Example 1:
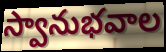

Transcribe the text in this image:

స్వానుభవాల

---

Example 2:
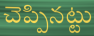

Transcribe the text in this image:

చెప్పినట్టు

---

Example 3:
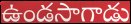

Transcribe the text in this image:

ఉండసాగాడు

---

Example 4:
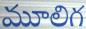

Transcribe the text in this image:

మూలిగ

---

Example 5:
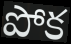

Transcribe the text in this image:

పోక